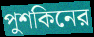
পুশকিনের